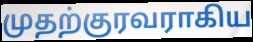
முதற்குரவராகிய